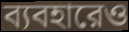
ব্যবহারেও